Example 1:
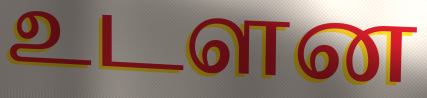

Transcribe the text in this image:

உடளன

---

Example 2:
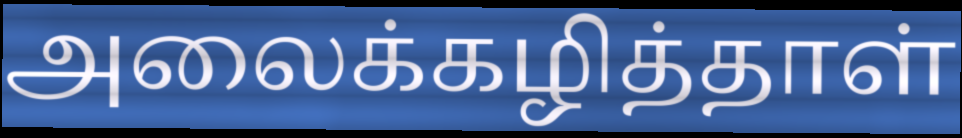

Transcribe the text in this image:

அலைக்கழித்தாள்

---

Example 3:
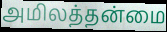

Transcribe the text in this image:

அமிலத்தன்மை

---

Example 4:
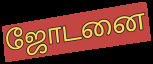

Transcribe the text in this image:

ஜோடனை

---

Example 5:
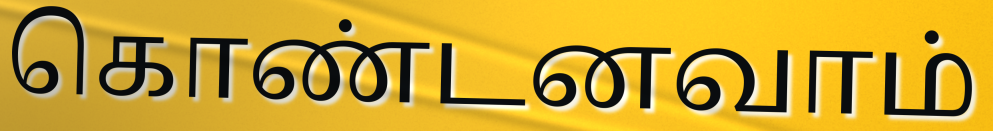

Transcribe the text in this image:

கொண்டனவாம்